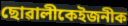
ছোৱালীকেইজনীক